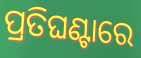
ପ୍ରତିଘଣ୍ଟାରେ